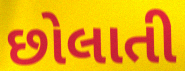
છોલાતી